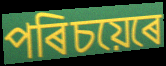
পৰিচয়েৰে